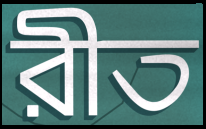
রীত